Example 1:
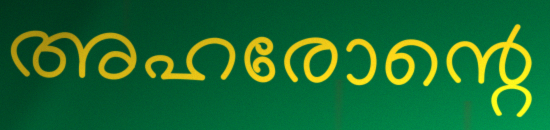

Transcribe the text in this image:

അഹരോന്റെ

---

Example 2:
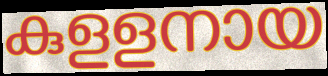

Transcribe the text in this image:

കുളളനായ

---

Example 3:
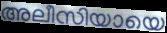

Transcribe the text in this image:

അലീസിയായെ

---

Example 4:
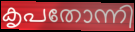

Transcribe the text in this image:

കൃപതോന്നി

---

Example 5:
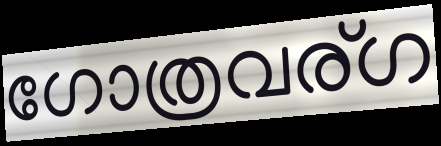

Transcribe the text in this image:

ഗോത്രവര്ഗ